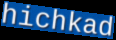
hichkad